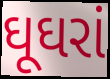
ઘૂઘરાં